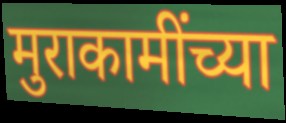
मुराकामींच्या